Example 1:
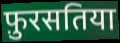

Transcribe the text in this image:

फ़ुरसतिया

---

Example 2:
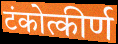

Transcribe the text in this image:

टंकोत्कीर्ण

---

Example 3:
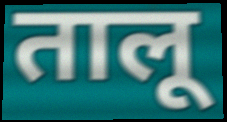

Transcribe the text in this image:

तालू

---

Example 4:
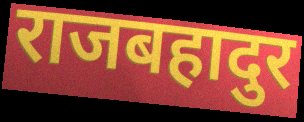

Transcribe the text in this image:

राजबहादुर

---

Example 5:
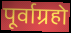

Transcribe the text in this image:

पूर्वाग्रहो